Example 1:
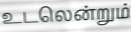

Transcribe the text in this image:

உடலென்றும்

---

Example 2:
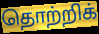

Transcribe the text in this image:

தொற்றிக்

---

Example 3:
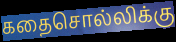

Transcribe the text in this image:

கதைசொல்லிக்கு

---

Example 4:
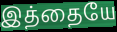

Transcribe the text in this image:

இத்தையே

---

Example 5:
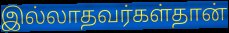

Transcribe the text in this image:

இல்லாதவர்கள்தான்